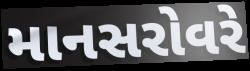
માનસરોવરે